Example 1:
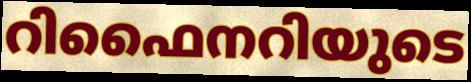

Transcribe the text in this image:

റിഫൈനറിയുടെ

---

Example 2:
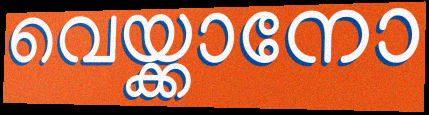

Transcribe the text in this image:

വെയ്ക്കാനോ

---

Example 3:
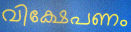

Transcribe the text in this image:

വിക്ഷേപണം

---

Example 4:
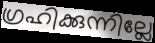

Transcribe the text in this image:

ഗ്രഹിക്കുന്നില്ലേ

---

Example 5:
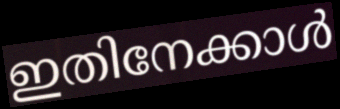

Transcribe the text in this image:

ഇതിനേക്കാൾ